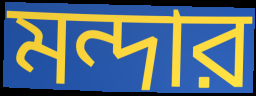
মন্দার